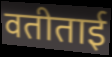
वतीताई